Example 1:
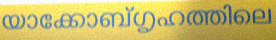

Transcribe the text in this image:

യാക്കോബ്ഗൃഹത്തിലെ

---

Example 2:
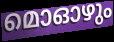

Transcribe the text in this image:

മൊഓഴും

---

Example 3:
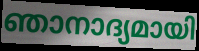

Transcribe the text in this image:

ഞാനാദ്യമായി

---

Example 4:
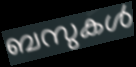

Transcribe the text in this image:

ബസുകൾ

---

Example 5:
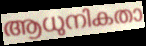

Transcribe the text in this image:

ആധുനികതാ